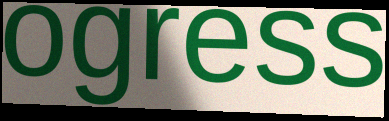
ogress